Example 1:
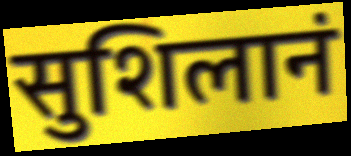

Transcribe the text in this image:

सुशिलानं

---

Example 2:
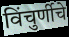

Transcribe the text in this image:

विंचुर्णीचे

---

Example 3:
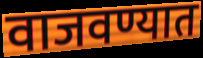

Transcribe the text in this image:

वाजवण्यात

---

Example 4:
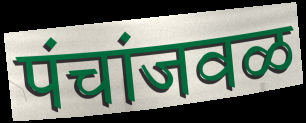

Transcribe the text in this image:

पंचांजवळ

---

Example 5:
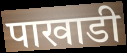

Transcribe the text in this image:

पाखाडी